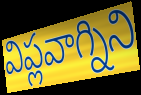
విప్లవాగ్నిని